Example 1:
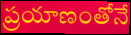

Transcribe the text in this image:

ప్రయాణంతోనే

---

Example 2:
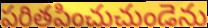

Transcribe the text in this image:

పరితపించుచుండెను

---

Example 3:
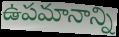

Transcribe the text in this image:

ఉపమానాన్ని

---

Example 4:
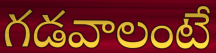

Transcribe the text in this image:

గడవాలంటే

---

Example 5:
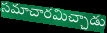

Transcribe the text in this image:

సమాచారమిచ్చాడు